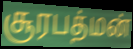
சூரபத்மன்